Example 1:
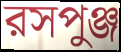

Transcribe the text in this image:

রসপুঞ্জ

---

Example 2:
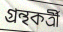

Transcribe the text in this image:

গ্রন্থকর্ত্রী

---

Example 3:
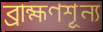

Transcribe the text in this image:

ব্রাহ্মণশূন্য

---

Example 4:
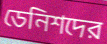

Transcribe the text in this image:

ডেনিশদের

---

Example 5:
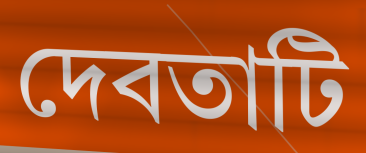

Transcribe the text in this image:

দেবতাটি